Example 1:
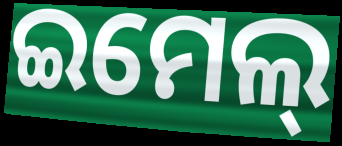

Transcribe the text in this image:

ଇମେଲ୍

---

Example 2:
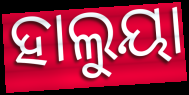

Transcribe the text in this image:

ହାଲୁୟା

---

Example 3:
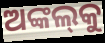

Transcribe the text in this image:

ଅଙ୍କଲ୍‌କୁ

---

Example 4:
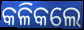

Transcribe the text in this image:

କଳିକଲେ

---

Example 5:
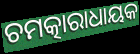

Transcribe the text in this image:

ଚମତ୍କାରାଧାୟକ